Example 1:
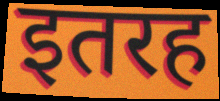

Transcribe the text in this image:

इतरह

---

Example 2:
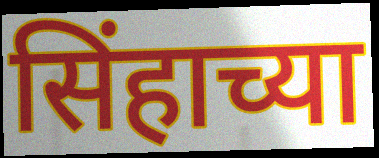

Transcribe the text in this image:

सिंहाच्या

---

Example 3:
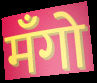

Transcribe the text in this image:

मँगो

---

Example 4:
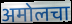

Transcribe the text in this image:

अमोलचा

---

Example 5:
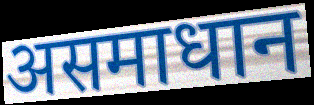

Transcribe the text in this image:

असमाधान